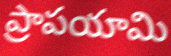
ప్రాపయామి